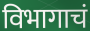
विभागाचं